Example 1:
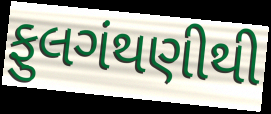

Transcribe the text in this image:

ફુલગંથણીથી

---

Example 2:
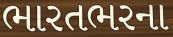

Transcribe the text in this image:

ભારતભરના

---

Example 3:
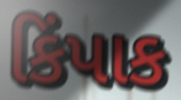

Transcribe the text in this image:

કિંપાક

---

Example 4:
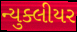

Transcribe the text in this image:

ન્યુક્લીયર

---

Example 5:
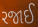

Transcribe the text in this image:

રજાઈ